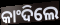
କାଂଦିଲେ